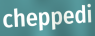
cheppedi